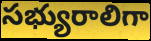
సభ్యురాలిగా